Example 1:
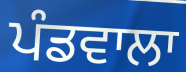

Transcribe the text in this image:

ਪੰਡਵਾਲਾ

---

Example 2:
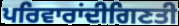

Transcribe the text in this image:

ਪਰਿਵਾਰਾਂਦੀਗਿਣਤੀ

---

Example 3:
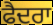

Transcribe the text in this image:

ਫੈਦਰਾ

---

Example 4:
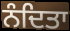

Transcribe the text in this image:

ਨੰਦਿਤਾ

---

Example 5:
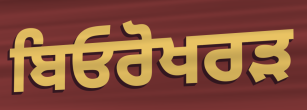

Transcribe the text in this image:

ਬਿਓਰੋਖਰੜ